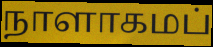
நாளாகமப்